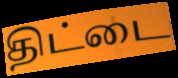
திட்டை